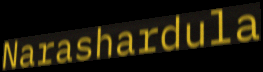
Narashardula